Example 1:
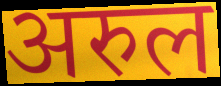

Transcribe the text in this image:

अरुल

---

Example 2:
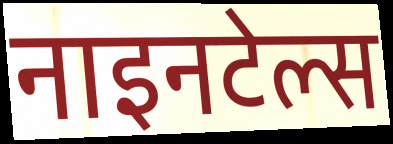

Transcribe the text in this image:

नाइनटेल्स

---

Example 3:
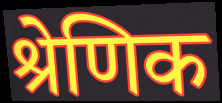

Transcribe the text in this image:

श्रेणिक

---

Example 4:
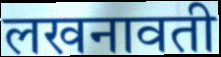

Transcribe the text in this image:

लखनावती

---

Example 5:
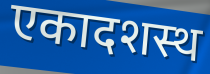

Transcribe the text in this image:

एकादशस्थ